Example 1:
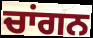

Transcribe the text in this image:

ਚਾਂਗਨ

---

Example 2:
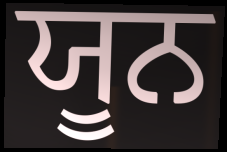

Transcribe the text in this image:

ਯੂਨ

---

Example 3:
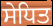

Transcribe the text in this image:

ਸੇਧਿਤ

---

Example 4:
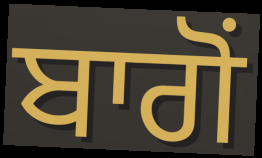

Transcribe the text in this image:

ਬਾਗੋਂ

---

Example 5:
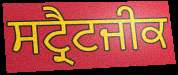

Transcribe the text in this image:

ਸਟ੍ਰੈਟਜੀਕ